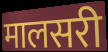
मालसरी